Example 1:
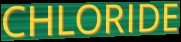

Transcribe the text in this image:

CHLORIDE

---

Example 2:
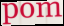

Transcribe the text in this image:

pom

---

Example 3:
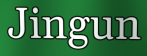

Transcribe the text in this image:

Jingun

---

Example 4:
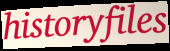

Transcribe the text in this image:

historyfiles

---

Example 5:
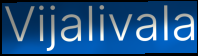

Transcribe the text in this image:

Vijalivala